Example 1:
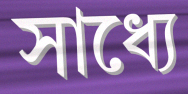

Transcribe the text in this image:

সাধ্যে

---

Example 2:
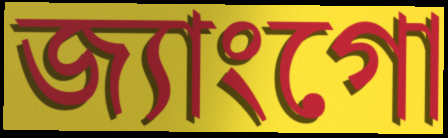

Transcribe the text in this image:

জ্যাংগো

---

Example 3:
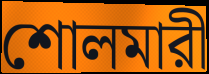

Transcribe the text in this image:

শোলমারী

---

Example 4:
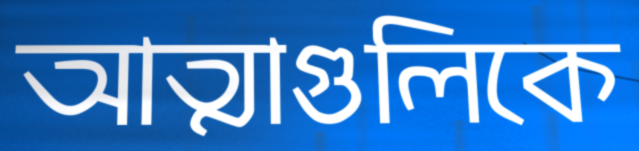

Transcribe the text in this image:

আত্মাগুলিকে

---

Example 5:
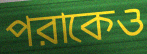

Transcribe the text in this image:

পরাকেও